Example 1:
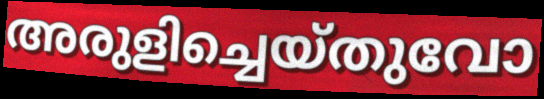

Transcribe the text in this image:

അരുളിച്ചെയ്തുവോ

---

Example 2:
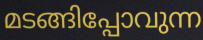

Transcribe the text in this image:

മടങ്ങിപ്പോവുന്ന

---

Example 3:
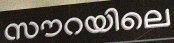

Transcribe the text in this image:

സൗറയിലെ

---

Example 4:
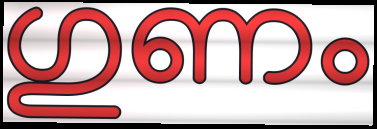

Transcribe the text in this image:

ഗുണം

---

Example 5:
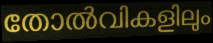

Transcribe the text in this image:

തോൽവികളിലും